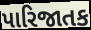
પારિજાતક